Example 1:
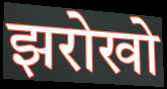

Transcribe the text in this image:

झरोखो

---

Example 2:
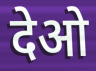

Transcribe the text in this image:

देओ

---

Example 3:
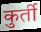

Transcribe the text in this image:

कुर्ती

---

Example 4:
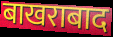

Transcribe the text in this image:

बाखराबाद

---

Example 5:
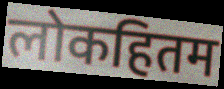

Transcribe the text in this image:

लोकहितम